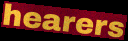
hearers